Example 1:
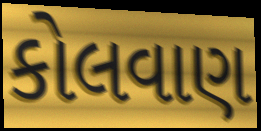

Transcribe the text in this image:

કોલવાણ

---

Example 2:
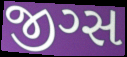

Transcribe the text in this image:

જીગ્સ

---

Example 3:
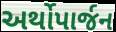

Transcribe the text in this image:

અર્થોપાર્જન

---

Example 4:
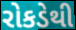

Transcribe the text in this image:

રોકડેથી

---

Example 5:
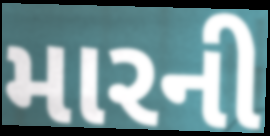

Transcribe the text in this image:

મારની